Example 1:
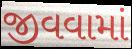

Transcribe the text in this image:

જીવવામાં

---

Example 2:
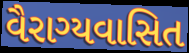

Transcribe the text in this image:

વૈરાગ્યવાસિત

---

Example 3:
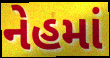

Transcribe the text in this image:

નેહમાં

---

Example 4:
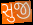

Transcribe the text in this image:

સુજી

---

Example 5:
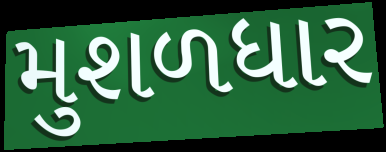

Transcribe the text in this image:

મુશળધાર